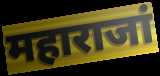
महाराजां